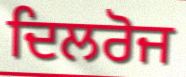
ਦਿਲਰੋਜ